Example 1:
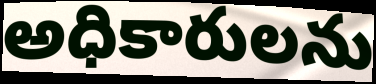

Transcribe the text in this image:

అధికారులను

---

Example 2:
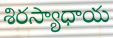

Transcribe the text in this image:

శిరస్యాధాయ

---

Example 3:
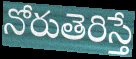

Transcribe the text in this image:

నోరుతెరిస్తే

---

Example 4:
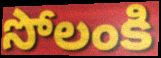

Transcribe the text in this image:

సోలంకి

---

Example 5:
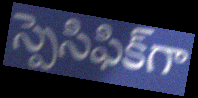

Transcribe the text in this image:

స్పెసిఫిక్‌గా